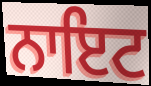
ਨਾਇਟ